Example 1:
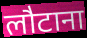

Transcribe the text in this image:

लौटाना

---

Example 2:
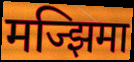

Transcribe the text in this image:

मज्झिमा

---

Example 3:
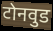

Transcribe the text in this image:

टोनवुड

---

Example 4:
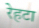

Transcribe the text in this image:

रेहटा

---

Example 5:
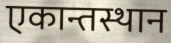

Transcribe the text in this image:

एकान्तस्थान